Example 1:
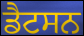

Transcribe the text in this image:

ਡੈਟਸਨ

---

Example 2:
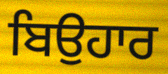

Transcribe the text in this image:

ਬਿਉਹਾਰ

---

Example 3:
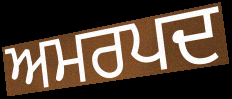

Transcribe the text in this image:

ਅਮਰਪਦ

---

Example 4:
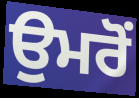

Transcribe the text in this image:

ਉਮਰੋਂ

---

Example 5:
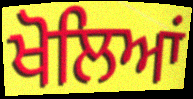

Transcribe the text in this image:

ਖੋਲਿਆਂ